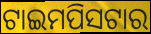
ଟାଇମପିସଟାର